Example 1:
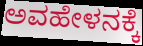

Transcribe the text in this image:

ಅವಹೇಳನಕ್ಕೆ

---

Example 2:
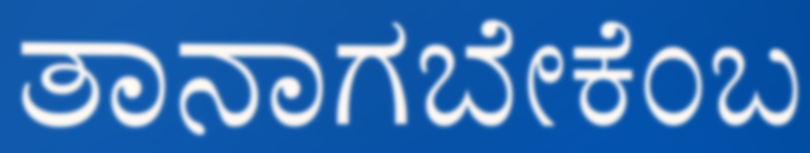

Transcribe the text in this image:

ತಾನಾಗಬೇಕೆಂಬ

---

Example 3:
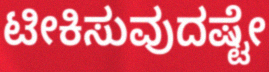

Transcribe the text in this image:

ಟೀಕಿಸುವುದಷ್ಟೇ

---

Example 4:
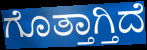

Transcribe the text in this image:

ಗೊತ್ತಾಗ್ತಿದೆ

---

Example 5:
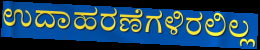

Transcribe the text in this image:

ಉದಾಹರಣೆಗಳಿರಲಿಲ್ಲ